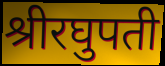
श्रीरघुपती